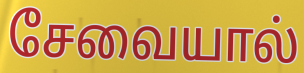
சேவையால்